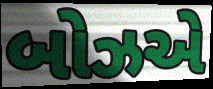
બોઝએ